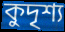
কুদৃশ্য